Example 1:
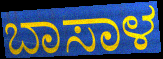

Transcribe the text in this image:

ಬಾಸಾಳ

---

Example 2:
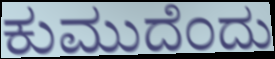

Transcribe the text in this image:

ಕುಮುದೆಂದು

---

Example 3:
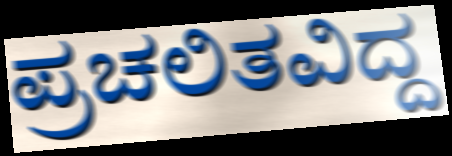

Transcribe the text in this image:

ಪ್ರಚಲಿತವಿದ್ದ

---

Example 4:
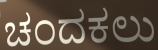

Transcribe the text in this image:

ಚಂದಕಲು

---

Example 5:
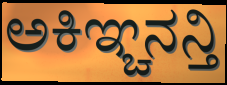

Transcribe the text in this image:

ಅಕಿಞ್ಚನನ್ತಿ